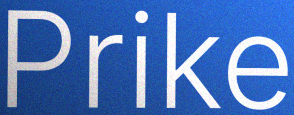
Prike